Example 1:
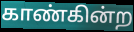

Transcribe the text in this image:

காண்கின்ற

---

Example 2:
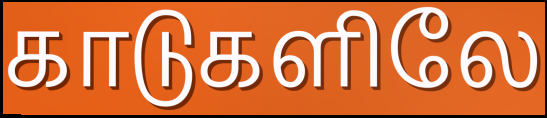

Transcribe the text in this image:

காடுகளிலே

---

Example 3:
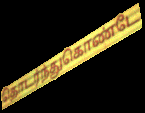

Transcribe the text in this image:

தொடர்ந்துகொண்டே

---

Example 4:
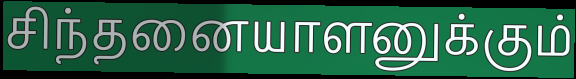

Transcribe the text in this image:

சிந்தனையாளனுக்கும்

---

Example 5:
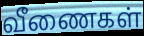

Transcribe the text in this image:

வீணைகள்